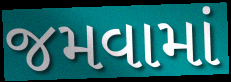
જમવામાં